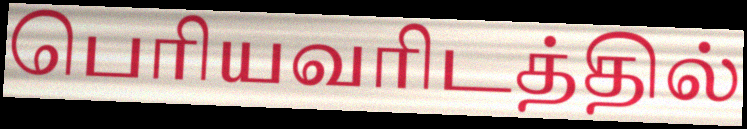
பெரியவரிடத்தில்